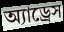
অ্যাড্রেস